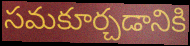
సమకూర్చడానికి